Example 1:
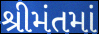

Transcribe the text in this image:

શ્રીમંતમાં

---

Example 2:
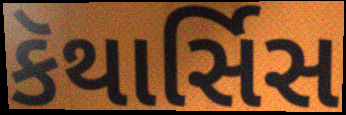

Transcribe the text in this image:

કૅથાર્સિસ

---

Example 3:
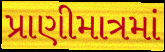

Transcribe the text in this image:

પ્રાણીમાત્રમાં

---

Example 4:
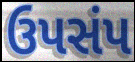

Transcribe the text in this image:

ઉપસંપ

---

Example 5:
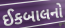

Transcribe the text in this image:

ઈકબાલનો